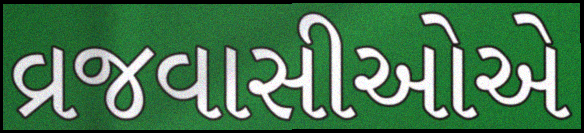
વ્રજવાસીઓએ